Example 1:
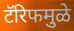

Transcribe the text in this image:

टॅरिफमुळे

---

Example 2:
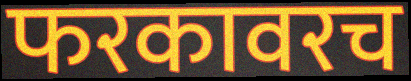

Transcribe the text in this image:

फरकावरच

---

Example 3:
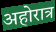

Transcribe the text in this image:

अहोरात्र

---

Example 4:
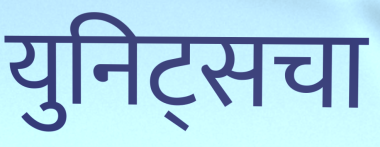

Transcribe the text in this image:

युनिट्सचा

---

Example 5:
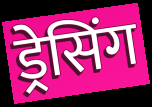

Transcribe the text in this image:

ड्रेसिंग